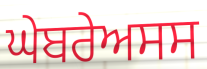
ਘੇਬਰੇਅਸਸ